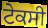
ਟੇਕਸੀ